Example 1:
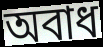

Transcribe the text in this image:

অবাধ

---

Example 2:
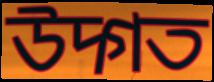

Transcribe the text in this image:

উদ্গত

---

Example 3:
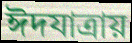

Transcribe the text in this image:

ঈদযাত্রায়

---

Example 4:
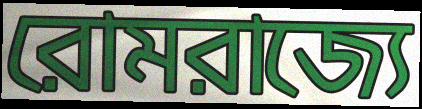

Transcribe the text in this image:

রোমরাজ্যে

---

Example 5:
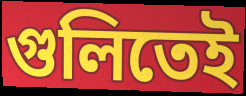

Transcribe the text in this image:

গুলিতেই